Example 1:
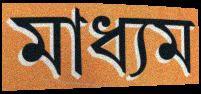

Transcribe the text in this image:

মাধ্যম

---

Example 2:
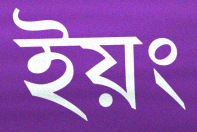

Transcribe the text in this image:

ইয়ং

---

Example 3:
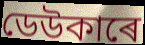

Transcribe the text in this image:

ডেউকাৰে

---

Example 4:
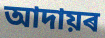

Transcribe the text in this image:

আদায়ৰ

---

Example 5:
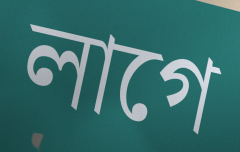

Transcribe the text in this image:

লাগে